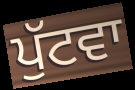
ਪੁੱਟਵਾ